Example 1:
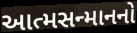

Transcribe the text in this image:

આત્મસન્માનનો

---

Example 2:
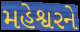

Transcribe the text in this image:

મહેશ્વરને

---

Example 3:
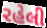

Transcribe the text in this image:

રહેલી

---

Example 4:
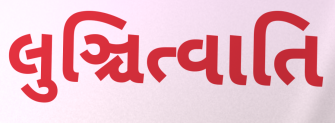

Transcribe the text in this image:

લુઞ્ચિત્વાતિ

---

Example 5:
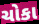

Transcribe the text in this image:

ચોકા